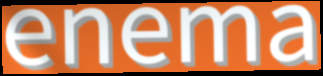
enema